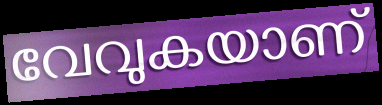
വേവുകയാണ്